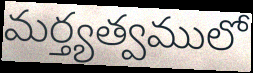
మర్త్యత్వములో